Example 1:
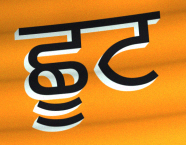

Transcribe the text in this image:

ਛੂਟ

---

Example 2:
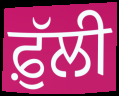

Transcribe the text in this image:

ਫ਼ੁੱਲੀ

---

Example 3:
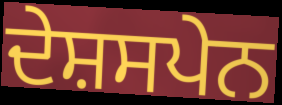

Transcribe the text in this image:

ਦੇਸ਼ਸਪੇਨ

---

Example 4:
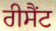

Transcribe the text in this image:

ਰੀਸੈਂਟ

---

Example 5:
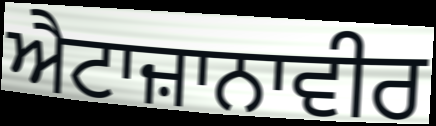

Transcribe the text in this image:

ਐਟਾਜ਼ਾਨਾਵੀਰ